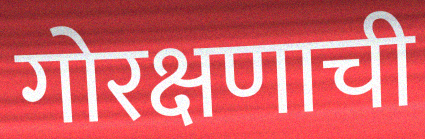
गोरक्षणाची